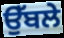
ਉੱਬਲੇ